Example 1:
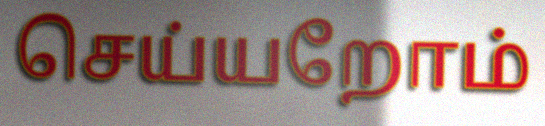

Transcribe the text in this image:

செய்யறோம்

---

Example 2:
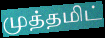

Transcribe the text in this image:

முத்தமிட்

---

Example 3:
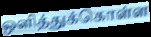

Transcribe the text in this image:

ஒளித்துக்கொள்ள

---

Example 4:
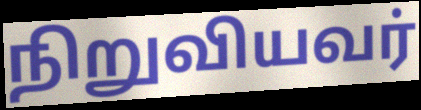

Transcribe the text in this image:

நிறுவியவர்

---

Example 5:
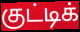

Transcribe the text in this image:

குட்டிக்